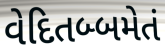
વેદિતબ્બમેતં